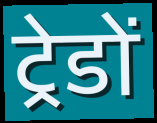
ट्रेडों